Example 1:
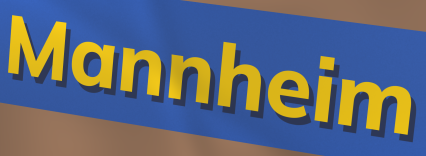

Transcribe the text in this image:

Mannheim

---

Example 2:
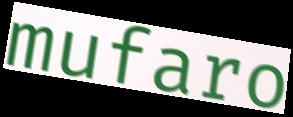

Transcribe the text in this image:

mufaro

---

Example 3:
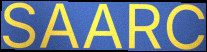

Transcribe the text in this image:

SAARC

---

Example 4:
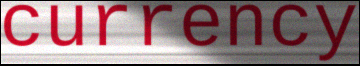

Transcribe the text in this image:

currency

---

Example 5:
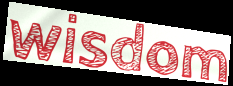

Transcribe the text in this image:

wisdom